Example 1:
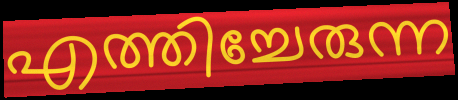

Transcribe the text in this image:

എത്തിച്ചേരുന്ന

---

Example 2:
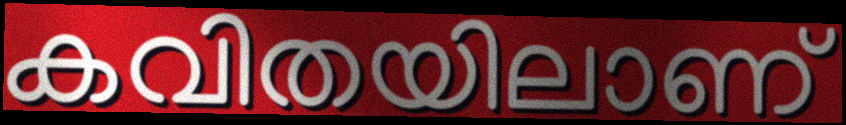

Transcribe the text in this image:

കവിതയിലാണ്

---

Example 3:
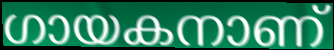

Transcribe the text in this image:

ഗായകനാണ്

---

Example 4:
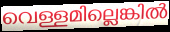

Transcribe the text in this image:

വെള്ളമില്ലെങ്കിൽ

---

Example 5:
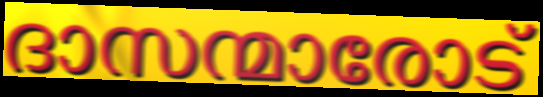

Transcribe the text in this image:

ദാസന്മാരോട്